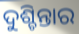
ଦୁଶ୍ଚିନ୍ତାର